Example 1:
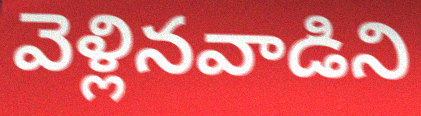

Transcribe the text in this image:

వెళ్లినవాడిని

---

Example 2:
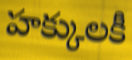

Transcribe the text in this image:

హక్కులకీ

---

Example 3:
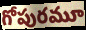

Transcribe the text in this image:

గోపురమూ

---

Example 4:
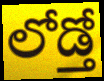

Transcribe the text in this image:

లోడ్తో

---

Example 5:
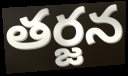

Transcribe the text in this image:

తర్జన